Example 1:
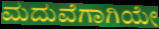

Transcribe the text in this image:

ಮದುವೆಗಾಗಿಯೇ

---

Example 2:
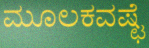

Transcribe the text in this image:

ಮೂಲಕವಷ್ಟೆ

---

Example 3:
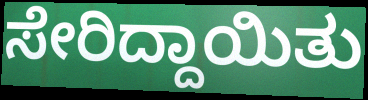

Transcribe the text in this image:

ಸೇರಿದ್ದಾಯಿತು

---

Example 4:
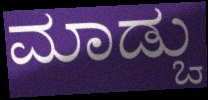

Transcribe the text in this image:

ಮಾಡ್ಚು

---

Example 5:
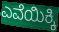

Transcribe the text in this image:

ಎವೆಯಿಕ್ಕಿ